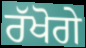
ਰੱਖੋਗੇ